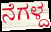
ನೆಗಳ್ದ